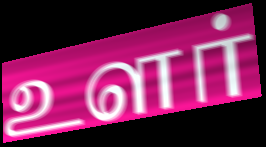
உளர்